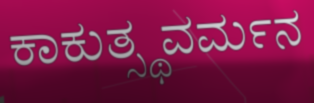
ಕಾಕುತ್ಸ್ಥವರ್ಮನ